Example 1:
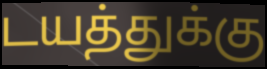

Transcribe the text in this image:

டயத்துக்கு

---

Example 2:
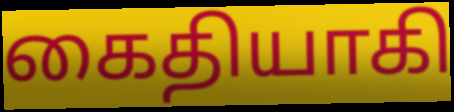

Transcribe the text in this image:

கைதியாகி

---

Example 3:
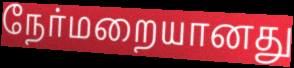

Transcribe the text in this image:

நேர்மறையானது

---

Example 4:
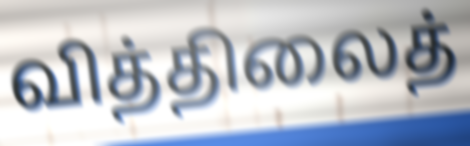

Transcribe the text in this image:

வித்திலைத்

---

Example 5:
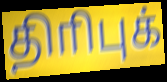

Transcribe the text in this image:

திரிபுக்